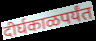
दीर्घकाळपर्यंत